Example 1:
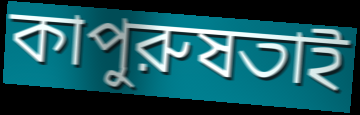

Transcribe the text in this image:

কাপুরুষতাই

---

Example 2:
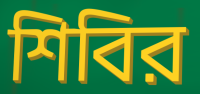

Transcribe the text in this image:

শিবির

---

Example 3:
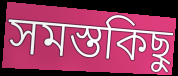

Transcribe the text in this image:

সমস্তকিছু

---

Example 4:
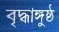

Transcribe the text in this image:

বৃদ্ধাঙ্গুষ্ঠ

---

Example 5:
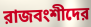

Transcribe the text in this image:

রাজবংশীদের